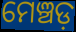
ମେଞ୍ଚଡ଼